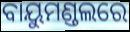
ବାୟୁମଣ୍ଡଲରେ